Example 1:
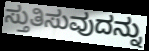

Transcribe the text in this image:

ಸ್ತುತಿಸುವುದನ್ನು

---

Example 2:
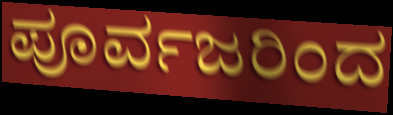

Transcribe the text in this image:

ಪೂರ್ವಜರಿಂದ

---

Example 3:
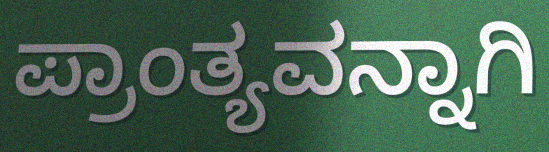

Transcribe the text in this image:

ಪ್ರಾಂತ್ಯವನ್ನಾಗಿ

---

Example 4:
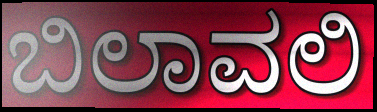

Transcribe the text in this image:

ಬಿಲಾವಲಿ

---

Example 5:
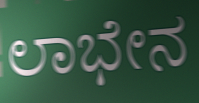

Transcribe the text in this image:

ಲಾಭೇನ